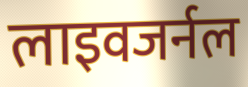
लाइवजर्नल